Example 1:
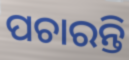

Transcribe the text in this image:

ପଚାରନ୍ତି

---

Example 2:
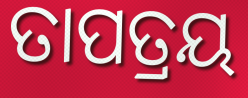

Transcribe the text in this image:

ତାପତ୍ରୟ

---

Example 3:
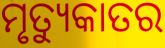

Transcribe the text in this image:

ମୃତ୍ୟୁକାତର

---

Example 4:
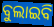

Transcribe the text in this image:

ବୁଲାଇବି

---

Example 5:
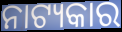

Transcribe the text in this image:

ନାଟ୍ଯକାର